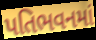
પતિભવનમાં